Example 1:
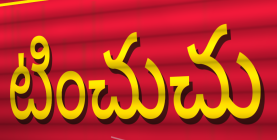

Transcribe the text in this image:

టించుచు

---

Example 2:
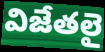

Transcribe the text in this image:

విజేతలై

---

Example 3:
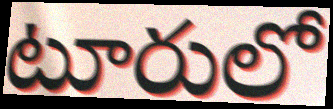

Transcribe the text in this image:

టూరులో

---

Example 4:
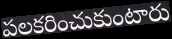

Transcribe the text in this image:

పలకరించుకుంటారు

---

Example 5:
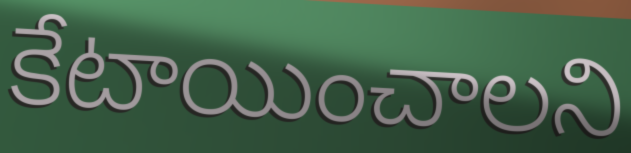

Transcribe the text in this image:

కేటాయించాలని